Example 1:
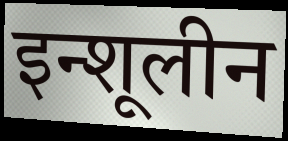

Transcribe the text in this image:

इन्शूलीन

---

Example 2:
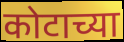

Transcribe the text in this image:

कोटाच्या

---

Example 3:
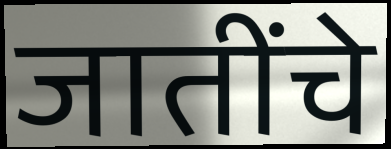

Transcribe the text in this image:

जातींचे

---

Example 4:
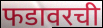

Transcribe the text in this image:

फडावरची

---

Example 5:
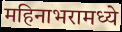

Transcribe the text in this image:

महिनाभरामध्ये